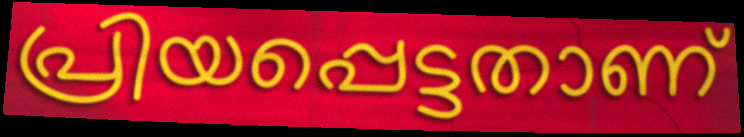
പ്രിയപ്പെട്ടതാണ്